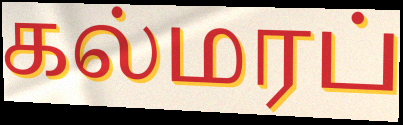
கல்மரப்